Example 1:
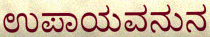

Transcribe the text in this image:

ಉಪಾಯವನುನ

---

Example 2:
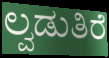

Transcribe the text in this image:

ಲ್ವಡುತಿರೆ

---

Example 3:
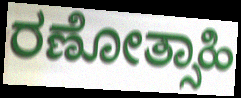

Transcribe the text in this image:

ರಣೋತ್ಸಾಹಿ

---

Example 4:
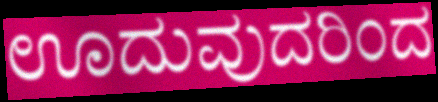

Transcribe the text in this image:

ಊದುವುದರಿಂದ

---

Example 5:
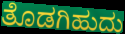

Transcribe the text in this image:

ತೊಡಗಿಹುದು